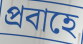
প্রবাহে